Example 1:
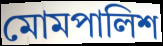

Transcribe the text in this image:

মোমপালিশ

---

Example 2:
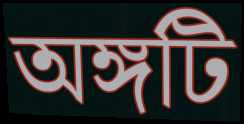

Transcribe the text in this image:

অঙ্গটি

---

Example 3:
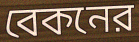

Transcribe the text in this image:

বেকনের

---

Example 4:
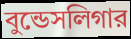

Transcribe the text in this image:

বুন্ডেসলিগার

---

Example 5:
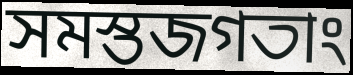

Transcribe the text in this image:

সমস্তজগতাং